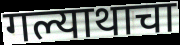
गल्याथाचा